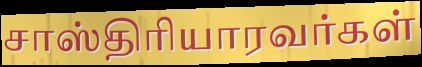
சாஸ்திரியாரவர்கள்